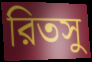
রিতসু